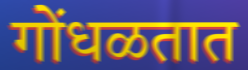
गोंधळतात